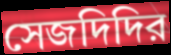
সেজদিদির